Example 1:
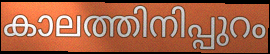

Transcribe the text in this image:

കാലത്തിനിപ്പുറം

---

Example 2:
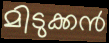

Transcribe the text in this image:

മിടുക്കൻ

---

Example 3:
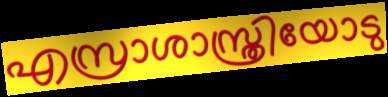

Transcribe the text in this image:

എസ്രാശാസ്ത്രിയോടു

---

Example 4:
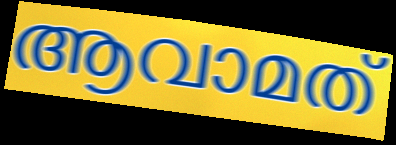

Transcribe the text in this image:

ആവാമത്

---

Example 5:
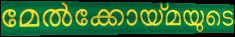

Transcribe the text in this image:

മേൽക്കോയ്മയുടെ